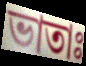
ভাতাঃ